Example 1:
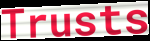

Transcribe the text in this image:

Trusts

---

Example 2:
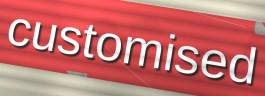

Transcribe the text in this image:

customised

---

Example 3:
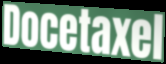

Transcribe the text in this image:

Docetaxel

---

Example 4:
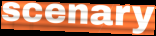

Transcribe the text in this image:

scenary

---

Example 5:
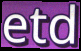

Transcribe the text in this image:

etd